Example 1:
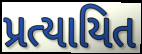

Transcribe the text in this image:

પ્રત્યાયિત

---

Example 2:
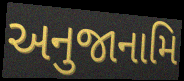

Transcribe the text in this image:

અનુજાનામિ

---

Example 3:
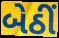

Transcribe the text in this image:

બેઠીં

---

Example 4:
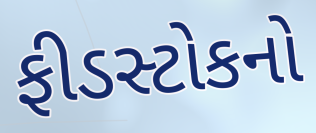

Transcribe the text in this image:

ફીડસ્ટોકનો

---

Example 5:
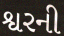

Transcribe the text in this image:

શ્વરની